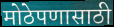
मोठेपणासाठी